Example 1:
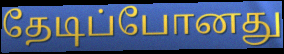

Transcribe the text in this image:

தேடிப்போனது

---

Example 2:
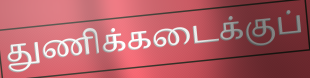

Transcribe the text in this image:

துணிக்கடைக்குப்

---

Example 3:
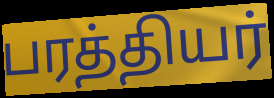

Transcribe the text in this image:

பரத்தியர்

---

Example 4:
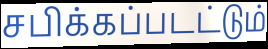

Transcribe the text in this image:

சபிக்கப்படட்டும்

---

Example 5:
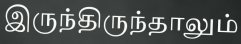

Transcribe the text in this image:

இருந்திருந்தாலும்